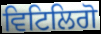
ਵਿਟਿਲਿਗੋ